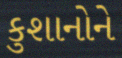
કુશાનોને